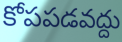
కోపపడవద్దు